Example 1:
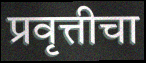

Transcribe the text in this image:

प्रवृत्तीचा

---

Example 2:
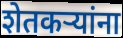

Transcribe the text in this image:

शेतकर्‍यांना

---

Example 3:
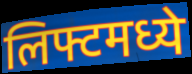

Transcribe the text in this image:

लिफ्टमध्ये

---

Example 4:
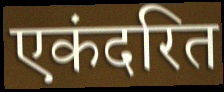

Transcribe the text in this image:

एकंदरित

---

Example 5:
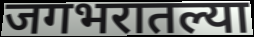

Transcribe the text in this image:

जगभरातल्या